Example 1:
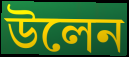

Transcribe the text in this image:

উলেন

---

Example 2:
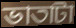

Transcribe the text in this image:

ভাতাটা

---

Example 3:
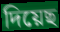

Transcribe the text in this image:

দিয়েছ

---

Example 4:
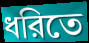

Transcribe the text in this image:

ধরিতে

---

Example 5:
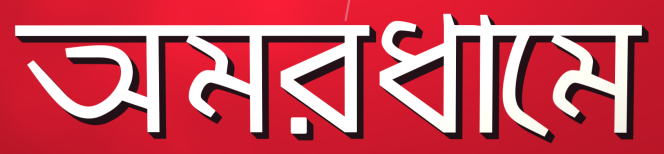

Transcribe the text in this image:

অমরধামে